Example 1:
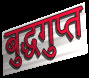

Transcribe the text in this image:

बुद्धगुप्त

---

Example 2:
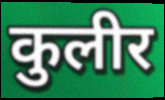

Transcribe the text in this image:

कुलीर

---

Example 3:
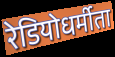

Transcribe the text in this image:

रेडियोधर्मीता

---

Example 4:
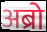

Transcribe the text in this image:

अब्रो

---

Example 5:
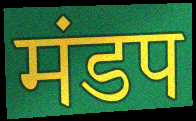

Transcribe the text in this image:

मंडप